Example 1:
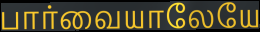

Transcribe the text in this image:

பார்வையாலேயே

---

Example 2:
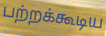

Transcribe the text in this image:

பற்றக்கூடிய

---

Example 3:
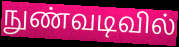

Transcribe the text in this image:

நுண்வடிவில்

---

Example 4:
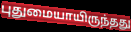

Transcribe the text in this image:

புதுமையாயிருந்தது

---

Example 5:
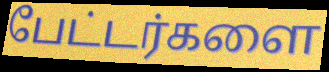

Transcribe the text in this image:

பேட்டர்களை